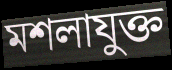
মশলাযুক্ত